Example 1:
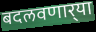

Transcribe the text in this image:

बदलवणार्‍या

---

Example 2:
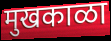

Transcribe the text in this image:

मुखकाळा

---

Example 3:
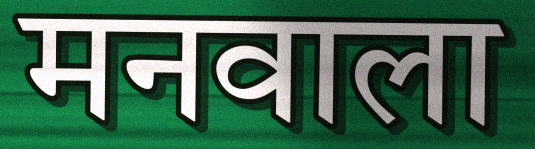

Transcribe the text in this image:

मनवाला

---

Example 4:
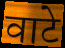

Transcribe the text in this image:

वाटे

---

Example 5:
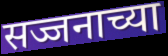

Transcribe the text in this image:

सज्जनाच्या